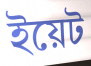
ইয়েট